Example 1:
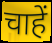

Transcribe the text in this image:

चाहें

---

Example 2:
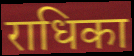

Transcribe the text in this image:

राधिका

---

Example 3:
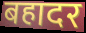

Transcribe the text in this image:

बहादर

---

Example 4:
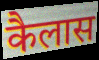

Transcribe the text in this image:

कैलास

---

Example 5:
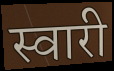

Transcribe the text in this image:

स्वारी